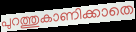
പുറത്തുകാണിക്കാതെ